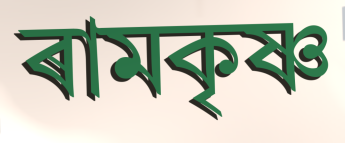
ৰামকৃষ্ণ